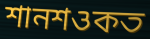
শানশওকত